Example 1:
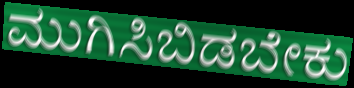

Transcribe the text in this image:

ಮುಗಿಸಿಬಿಡಬೇಕು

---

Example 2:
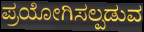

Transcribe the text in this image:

ಪ್ರಯೋಗಿಸಲ್ಪಡುವ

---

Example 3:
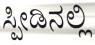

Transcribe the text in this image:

ಸ್ಪೀಡಿನಲ್ಲಿ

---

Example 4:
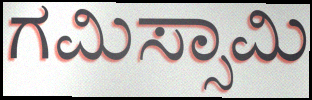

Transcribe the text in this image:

ಗಮಿಸ್ಸಾಮಿ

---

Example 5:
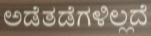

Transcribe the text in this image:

ಅಡೆತಡೆಗಳಿಲ್ಲದೆ